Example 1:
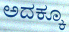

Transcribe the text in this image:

ಅದಕ್ಕೂ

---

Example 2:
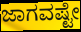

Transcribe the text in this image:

ಜಾಗವಷ್ಟೇ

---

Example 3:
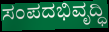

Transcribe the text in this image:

ಸಂಪದಭಿವೃದ್ಧಿ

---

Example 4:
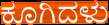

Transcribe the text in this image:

ಕೂಗಿದಳು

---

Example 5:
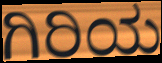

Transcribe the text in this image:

ಗಿರಿಯ